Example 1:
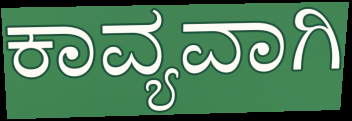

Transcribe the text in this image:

ಕಾವ್ಯವಾಗಿ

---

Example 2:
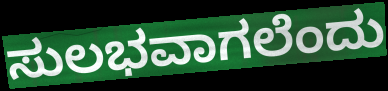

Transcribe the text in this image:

ಸುಲಭವಾಗಲೆಂದು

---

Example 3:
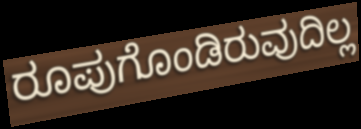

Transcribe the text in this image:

ರೂಪುಗೊಂಡಿರುವುದಿಲ್ಲ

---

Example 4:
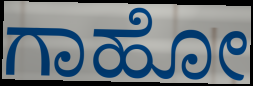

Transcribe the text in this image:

ಗಾಹೋ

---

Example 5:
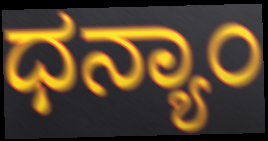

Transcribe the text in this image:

ಧನ್ಯಾಂ